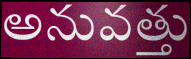
అనువత్తు